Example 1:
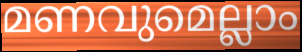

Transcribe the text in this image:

മണവുമെല്ലാം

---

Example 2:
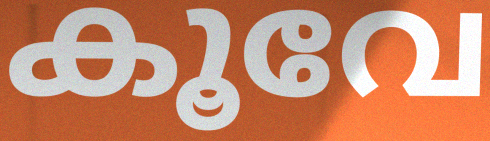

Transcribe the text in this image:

കൂവേ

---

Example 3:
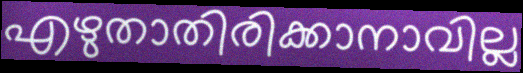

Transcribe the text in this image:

എഴുതാതിരിക്കാനാവില്ല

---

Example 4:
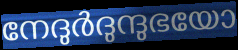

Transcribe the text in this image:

നേദുർദുന്ദുഭയോ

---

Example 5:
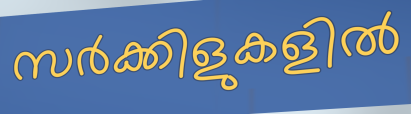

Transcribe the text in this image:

സർക്കിളുകളിൽ